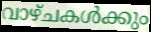
വാഴ്ചകൾക്കും